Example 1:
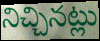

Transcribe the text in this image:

నిచ్చినట్లు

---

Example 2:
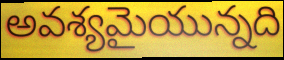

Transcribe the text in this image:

అవశ్యమైయున్నది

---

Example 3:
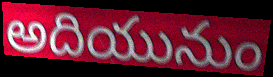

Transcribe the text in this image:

అదియునుం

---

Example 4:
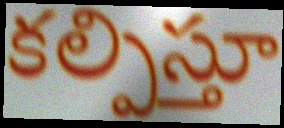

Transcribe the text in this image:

కల్పిస్తూ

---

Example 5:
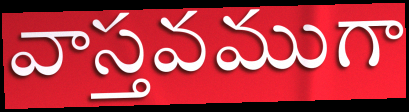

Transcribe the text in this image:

వాస్తవముగా